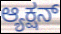
ಆ್ಯಕ್ಷನ್